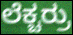
ಲೆಕ್ಚರ್ರು